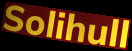
Solihull